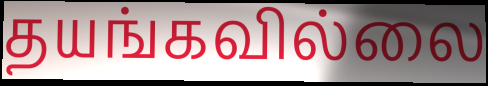
தயங்கவில்லை